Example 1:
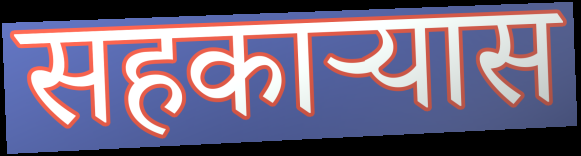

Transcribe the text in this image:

सहकार्‍यास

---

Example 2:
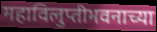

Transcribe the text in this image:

महाविलुप्तीभवनाच्या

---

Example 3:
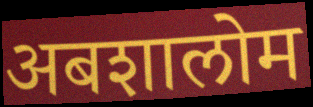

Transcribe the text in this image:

अबशालोम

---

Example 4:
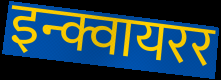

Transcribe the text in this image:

इन्क्वायरर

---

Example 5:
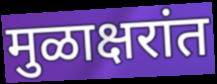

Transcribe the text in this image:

मुळाक्षरांत